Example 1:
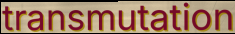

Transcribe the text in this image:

transmutation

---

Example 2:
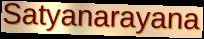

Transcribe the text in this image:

Satyanarayana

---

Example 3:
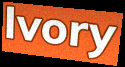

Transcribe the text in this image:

Ivory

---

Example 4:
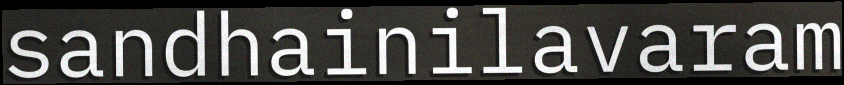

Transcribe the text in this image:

sandhainilavaram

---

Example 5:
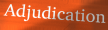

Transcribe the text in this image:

Adjudication